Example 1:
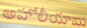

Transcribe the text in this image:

అహోలీయాబు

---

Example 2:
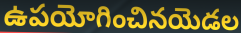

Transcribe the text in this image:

ఉపయోగించినయెడల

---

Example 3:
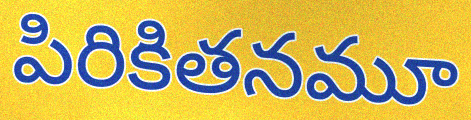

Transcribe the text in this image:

పిరికితనమూ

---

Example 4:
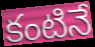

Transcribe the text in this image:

కంటినే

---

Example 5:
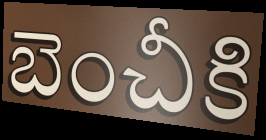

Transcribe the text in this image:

బెంచీకి